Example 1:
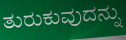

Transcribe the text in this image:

ತುರುಕುವುದನ್ನು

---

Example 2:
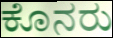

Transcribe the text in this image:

ಕೊನರು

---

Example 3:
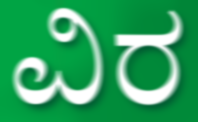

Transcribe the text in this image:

ವಿರ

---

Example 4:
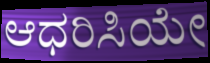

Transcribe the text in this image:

ಆಧರಿಸಿಯೇ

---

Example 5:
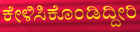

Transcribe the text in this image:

ಕೇಳಿಸಿಕೊಂಡಿದ್ದೀರಿ